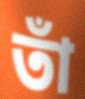
তাঁ